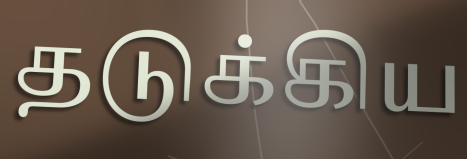
தடுக்கிய